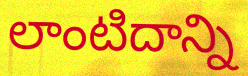
లాంటిదాన్ని